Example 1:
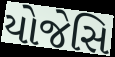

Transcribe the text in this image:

યોજેસિ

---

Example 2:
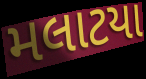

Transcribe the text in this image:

મલાટયા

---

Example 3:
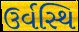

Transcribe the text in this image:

ઉર્વસ્થિ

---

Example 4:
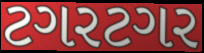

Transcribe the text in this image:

ટગરટગર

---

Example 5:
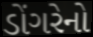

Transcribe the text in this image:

ડોંગરેનો